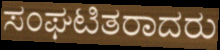
ಸಂಘಟಿತರಾದರು